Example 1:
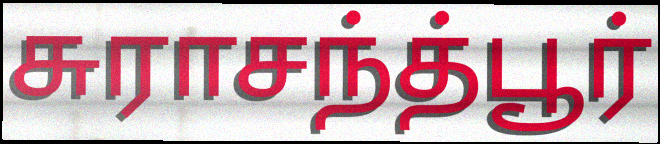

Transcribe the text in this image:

சுராசந்த்பூர்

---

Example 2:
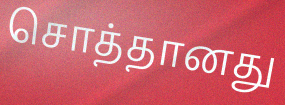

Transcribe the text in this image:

சொத்தானது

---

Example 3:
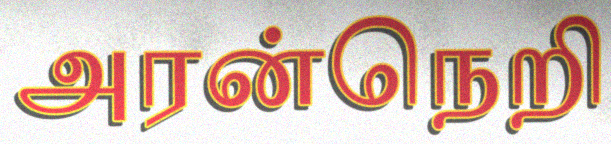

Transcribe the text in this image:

அரன்நெறி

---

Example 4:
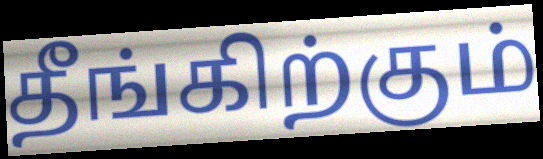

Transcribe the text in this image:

தீங்கிற்கும்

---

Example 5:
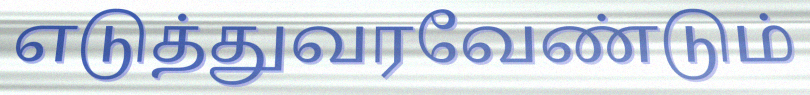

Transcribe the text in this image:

எடுத்துவரவேண்டும்